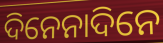
ଦିନେନାଦିନେ